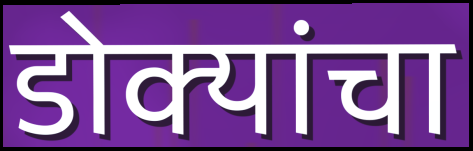
डोक्यांचा